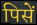
पिसें